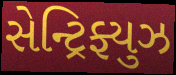
સેન્ટ્રિફ્યુઝ